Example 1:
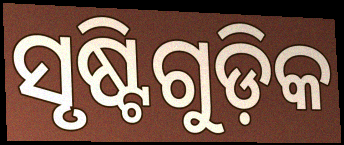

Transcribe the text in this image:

ସୃଷ୍ଟିଗୁଡ଼ିକ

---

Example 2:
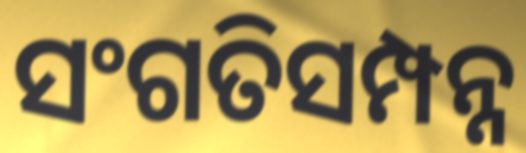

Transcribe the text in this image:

ସଂଗତିସମ୍ପନ୍ନ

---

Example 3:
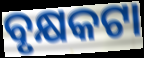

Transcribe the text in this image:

ବୃକ୍ଷକଟା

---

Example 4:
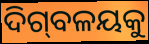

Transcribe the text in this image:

ଦିଗ୍‌ବଳୟକୁ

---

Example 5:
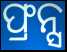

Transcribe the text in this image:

ଫ୍ରନ୍ସ